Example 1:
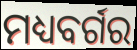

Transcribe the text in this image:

ମଧ୍ୟବର୍ଗର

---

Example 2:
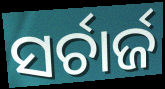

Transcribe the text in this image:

ସର୍ଚାର୍ଜ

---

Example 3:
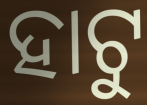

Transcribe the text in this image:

ହାଟୁ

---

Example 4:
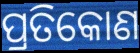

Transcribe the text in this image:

ପ୍ରତିକୋଣ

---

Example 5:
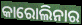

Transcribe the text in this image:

କାରୋଲିନାର